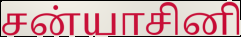
சன்யாசினி